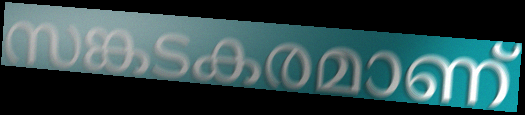
സങ്കടകരമാണ്